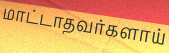
மாட்டாதவர்களாய்